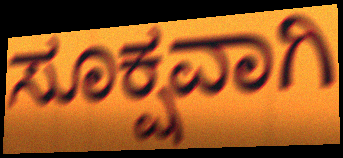
ಸೂಕ್ಷವಾಗಿ